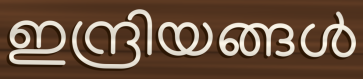
ഇന്ദ്രിയങ്ങൾ